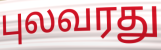
புலவரது